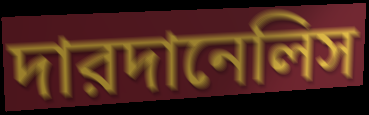
দারদানেলিস